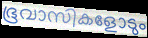
ഭൂവാസികളോടും